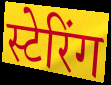
स्टेरिंग